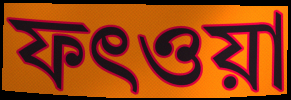
ফৎওয়া